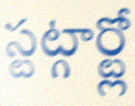
స్టట్గార్ట్లో